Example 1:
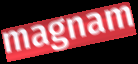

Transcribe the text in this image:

magnam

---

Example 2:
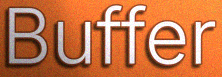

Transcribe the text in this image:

Buffer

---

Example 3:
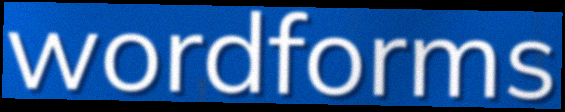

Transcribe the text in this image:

wordforms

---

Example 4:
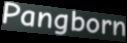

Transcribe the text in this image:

Pangborn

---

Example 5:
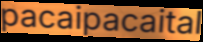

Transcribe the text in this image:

pacaipacaital